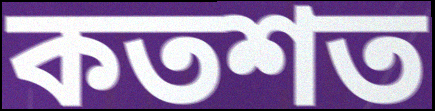
কতশত